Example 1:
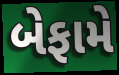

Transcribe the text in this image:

બેફામે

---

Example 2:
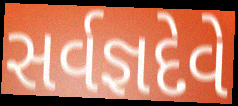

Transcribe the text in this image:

સર્વજ્ઞદેવે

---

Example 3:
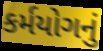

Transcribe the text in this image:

કર્મયોગનું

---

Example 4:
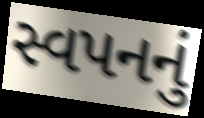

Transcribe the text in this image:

સ્વપનનું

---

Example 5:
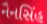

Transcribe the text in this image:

નૈનસિંહ